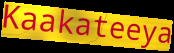
Kaakateeya